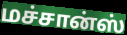
மச்சான்ஸ்